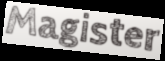
Magister